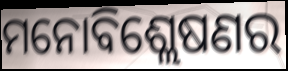
ମନୋବିଶ୍ଲେଷଣର